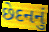
છેદનનું